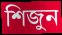
শিজুন